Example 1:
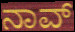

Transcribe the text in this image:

ನಾವ್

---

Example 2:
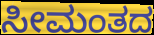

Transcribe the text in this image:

ಸೀಮಂತದ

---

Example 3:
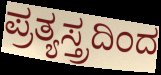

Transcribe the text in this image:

ಪ್ರತ್ಯಸ್ತ್ರದಿಂದ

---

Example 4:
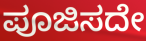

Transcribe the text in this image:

ಪೂಜಿಸದೇ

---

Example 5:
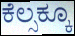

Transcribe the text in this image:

ಕೆಲ್ಸಕ್ಕೂ